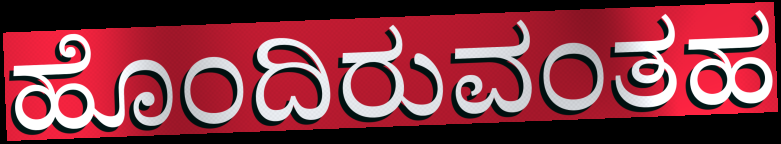
ಹೊಂದಿರುವಂತಹ